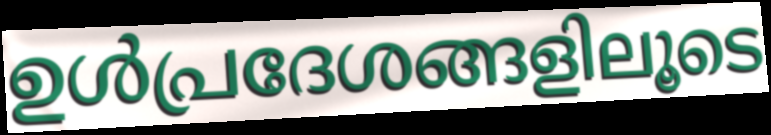
ഉൾപ്രദേശങ്ങളിലൂടെ